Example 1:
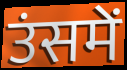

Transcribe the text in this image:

उंसमें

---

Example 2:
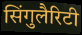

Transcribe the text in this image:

सिंगुलैरिटी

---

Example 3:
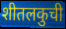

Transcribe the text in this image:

शीतलकुची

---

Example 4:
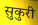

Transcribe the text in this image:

सुकुरी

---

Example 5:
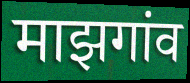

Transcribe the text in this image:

माझगांव